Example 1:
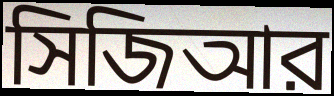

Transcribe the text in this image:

সিজিআর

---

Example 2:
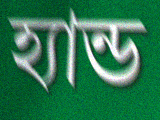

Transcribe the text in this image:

হ্যান্ড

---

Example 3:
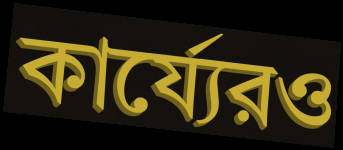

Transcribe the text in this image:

কার্য্যেরও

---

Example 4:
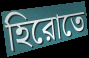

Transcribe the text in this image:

হিরোতে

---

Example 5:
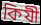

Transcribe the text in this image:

কিযী